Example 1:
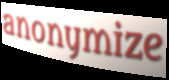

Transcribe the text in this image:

anonymize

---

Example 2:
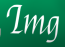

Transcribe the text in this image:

Img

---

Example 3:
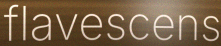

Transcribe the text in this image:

flavescens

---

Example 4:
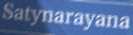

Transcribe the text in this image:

Satynarayana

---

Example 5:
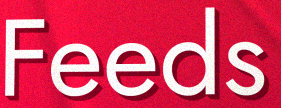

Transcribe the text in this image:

Feeds